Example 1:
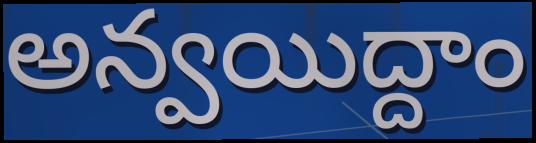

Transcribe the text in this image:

అన్వయిద్దాం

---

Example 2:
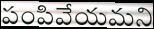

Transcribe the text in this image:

పంపివేయమని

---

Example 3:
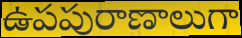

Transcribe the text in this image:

ఉపపురాణాలుగా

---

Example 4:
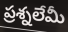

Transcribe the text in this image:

ప్రశ్నలేమీ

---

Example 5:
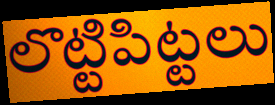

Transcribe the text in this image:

లొట్టిపిట్టలు